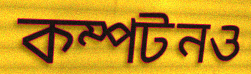
কম্পটনও